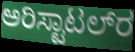
ಅರಿಸ್ಟಾಟಲ್‍ರ